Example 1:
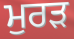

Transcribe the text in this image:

ਮੁਰੜ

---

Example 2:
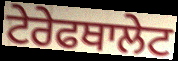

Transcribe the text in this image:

ਟੇਰੇਫਥਾਲੇਟ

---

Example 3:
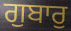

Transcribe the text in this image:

ਗੁਬਾਰੁ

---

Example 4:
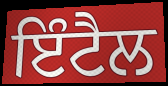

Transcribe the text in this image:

ਇੰਟੈਲ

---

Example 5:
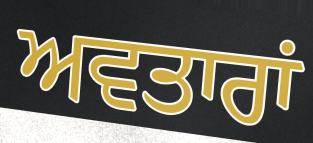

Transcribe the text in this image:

ਅਵਤਾਰਾਂ